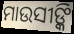
ମାଉସୀଙ୍କି